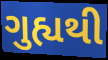
ગુહ્યથી